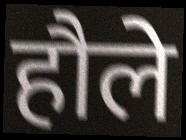
हौले